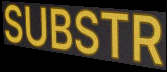
SUBSTR